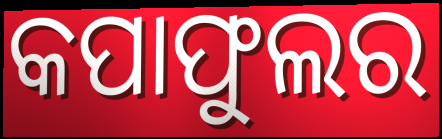
କପାଫୁଲର